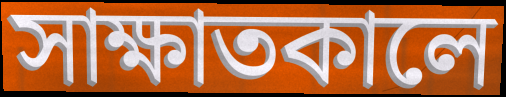
সাক্ষাতকালে